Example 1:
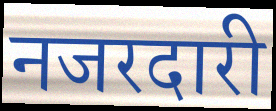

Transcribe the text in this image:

नजरदारी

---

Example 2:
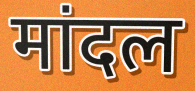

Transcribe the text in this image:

मांदल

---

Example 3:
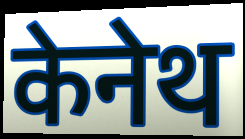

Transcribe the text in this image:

केनेथ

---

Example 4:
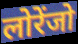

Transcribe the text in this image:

लोरेंजो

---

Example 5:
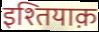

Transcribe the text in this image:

इश्तियाक़